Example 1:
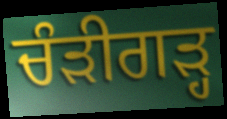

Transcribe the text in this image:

ਚੰੜੀਗੜ੍ਹ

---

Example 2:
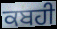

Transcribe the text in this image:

ਕਬਹੀ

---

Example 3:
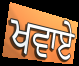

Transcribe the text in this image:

ਖਵਾਏ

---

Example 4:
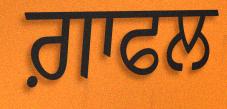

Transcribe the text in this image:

ਗ਼ਾਫਲ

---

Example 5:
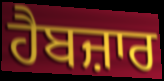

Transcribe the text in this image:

ਹੈਬਜ਼ਾਰ